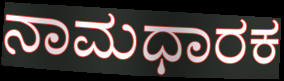
ನಾಮಧಾರಕ